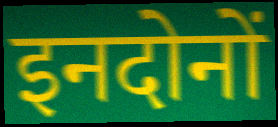
इनदोनों